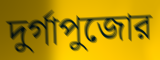
দুর্গাপুজোর